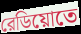
রেডিয়োতে